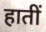
हातीं